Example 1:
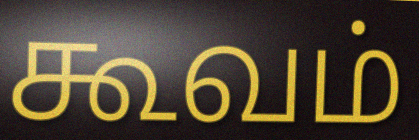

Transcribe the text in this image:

கூவம்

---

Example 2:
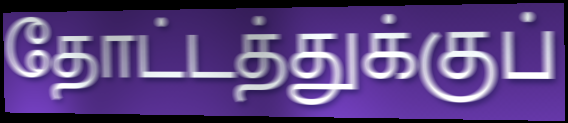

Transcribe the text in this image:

தோட்டத்துக்குப்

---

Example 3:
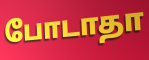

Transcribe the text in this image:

போடாதா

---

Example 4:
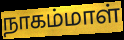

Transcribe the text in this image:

நாகம்மாள்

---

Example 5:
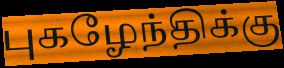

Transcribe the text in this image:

புகழேந்திக்கு